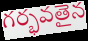
గర్భవతైన